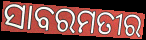
ସାବରମତୀର